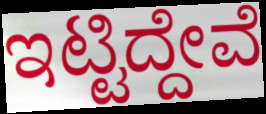
ಇಟ್ಟಿದ್ದೇವೆ